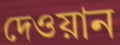
দেওয়ান